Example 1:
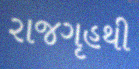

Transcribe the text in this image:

રાજગૃહથી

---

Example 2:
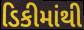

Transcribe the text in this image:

ડિકીમાંથી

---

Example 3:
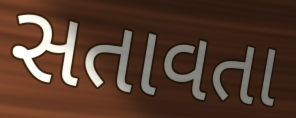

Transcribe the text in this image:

સતાવતા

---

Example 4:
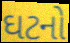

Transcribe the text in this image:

ઘટનો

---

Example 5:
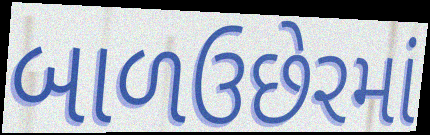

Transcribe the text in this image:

બાળઉછેરમાં